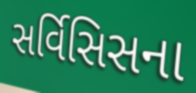
સર્વિસિસના